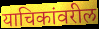
याचिकांवरील